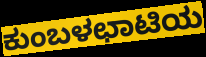
ಕುಂಬಳಛಾಟಿಯ